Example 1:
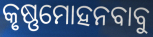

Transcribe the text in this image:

କୃଷ୍ଣମୋହନବାବୁ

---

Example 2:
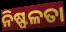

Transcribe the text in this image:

ନିଷ୍ଫଳତା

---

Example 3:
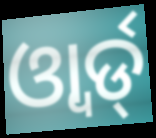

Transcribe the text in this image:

ଓ୍ୱାର୍ଡ୍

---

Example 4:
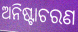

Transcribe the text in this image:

ଅନିଷ୍ଟାଚରଣ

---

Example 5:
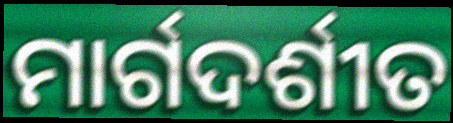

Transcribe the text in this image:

ମାର୍ଗଦର୍ଶୀତ